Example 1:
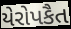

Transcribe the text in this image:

યેરોપકૈત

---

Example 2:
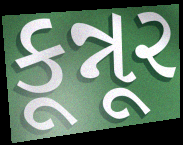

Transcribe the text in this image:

કૂન્નૂર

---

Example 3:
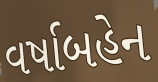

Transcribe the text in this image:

વર્ષાબહેન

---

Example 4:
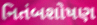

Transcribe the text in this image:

નિતંબશોષણ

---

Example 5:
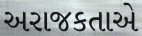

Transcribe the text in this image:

અરાજકતાએ